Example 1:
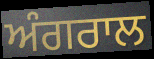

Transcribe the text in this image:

ਅੰਗਰਾਲ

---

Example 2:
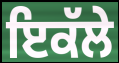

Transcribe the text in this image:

ਇਕੱਲੇ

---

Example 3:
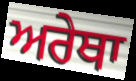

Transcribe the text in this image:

ਅਰੇਥਾ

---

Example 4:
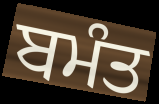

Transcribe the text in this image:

ਬਮੰਤ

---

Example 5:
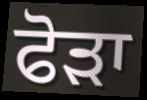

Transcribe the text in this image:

ਫੋੜਾ